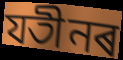
যতীনৰ